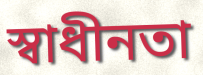
স্বাধীনতা